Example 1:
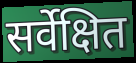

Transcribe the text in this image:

सर्वेक्षित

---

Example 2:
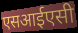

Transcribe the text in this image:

एसआईएसी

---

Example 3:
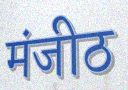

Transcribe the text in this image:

मंजीठ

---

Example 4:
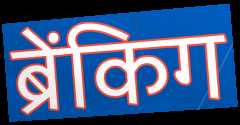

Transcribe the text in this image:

ब्रेंकिग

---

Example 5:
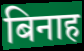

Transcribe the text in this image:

बिनाह